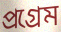
প্ৰগ্ৰেম